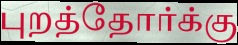
புறத்தோர்க்கு